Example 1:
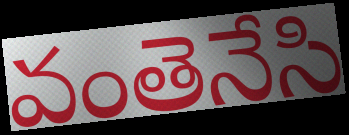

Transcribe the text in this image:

వంతెనేసి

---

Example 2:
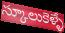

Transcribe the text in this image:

స్కూలుకెళ్ళే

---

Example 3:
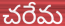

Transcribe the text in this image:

చరేమ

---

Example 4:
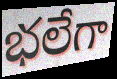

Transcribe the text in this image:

భలేగా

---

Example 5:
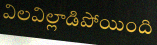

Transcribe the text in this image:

విలవిల్లాడిపోయింది